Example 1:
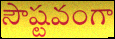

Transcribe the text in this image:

సౌష్టవంగా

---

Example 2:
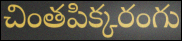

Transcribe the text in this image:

చింతపిక్కరంగు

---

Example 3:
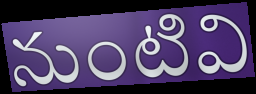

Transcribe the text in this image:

నుంటివి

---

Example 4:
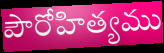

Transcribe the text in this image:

పౌరోహిత్యము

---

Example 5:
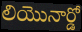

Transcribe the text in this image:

లియొనార్డో